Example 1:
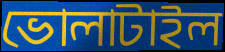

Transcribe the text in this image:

ভোলাটাইল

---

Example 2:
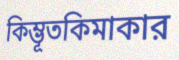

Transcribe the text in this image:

কিম্ভূতকিমাকার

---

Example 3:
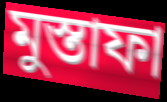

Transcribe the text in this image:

মুস্তাফা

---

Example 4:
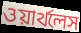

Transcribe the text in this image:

ওয়ার্থলেস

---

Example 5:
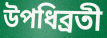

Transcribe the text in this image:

উপধিব্রতী